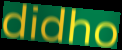
didho